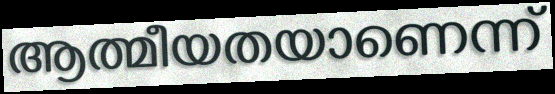
ആത്മീയതയാണെന്ന്